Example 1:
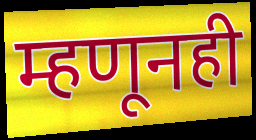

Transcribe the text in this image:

म्‍हणूनही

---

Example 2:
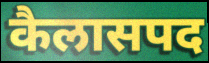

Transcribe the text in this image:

कैलासपद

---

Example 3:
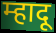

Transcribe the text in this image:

म्हादू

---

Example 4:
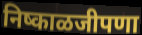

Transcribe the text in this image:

निष्काळजीपणा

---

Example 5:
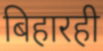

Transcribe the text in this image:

बिहारही